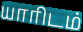
யாரிடம்